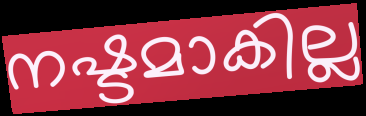
നഷ്ടമാകില്ല